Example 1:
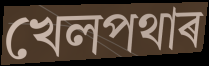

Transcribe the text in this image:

খেলপথাৰ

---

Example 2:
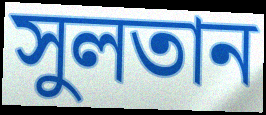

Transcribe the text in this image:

সুলতান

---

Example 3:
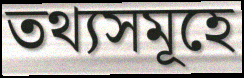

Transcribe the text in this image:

তথ্যসমূহে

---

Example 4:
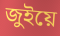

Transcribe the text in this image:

জুইয়ে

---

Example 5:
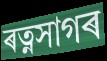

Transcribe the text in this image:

ৰত্নসাগৰ